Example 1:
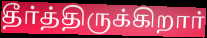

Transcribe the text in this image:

தீர்த்திருக்கிறார்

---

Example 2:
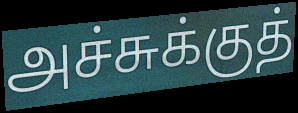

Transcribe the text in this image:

அச்சுக்குத்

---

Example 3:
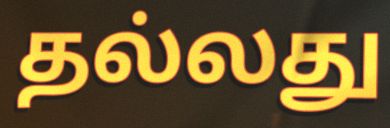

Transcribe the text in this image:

தல்லது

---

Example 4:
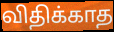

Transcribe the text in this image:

விதிக்காத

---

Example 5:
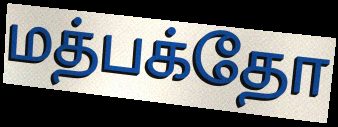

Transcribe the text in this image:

மத்பக்தோ